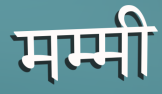
मम्मी